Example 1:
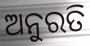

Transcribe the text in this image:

ଅନୁରତି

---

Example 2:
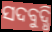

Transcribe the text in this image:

ସଦବୁଦ୍ଧି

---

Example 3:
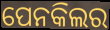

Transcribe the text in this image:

ପେନକିଲର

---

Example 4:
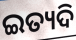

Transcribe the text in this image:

ଇତ୍ୟଦି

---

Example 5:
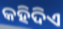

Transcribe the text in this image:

କହିଦିଏ